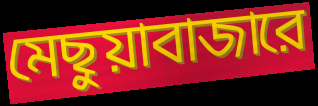
মেছুয়াবাজারে